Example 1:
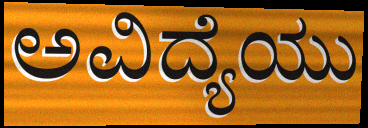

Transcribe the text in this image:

ಅವಿದ್ಯೆಯು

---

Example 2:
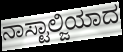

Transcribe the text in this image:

ನಾಸ್ಟಾಲ್ಜಿಯಾದ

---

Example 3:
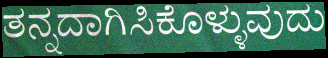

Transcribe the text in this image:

ತನ್ನದಾಗಿಸಿಕೊಳ್ಳುವುದು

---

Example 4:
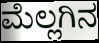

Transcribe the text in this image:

ಮೆಲ್ಲಗಿನ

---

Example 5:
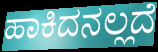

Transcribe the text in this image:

ಹಾಕಿದನಲ್ಲದೆ